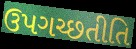
ઉપગચ્છતીતિ